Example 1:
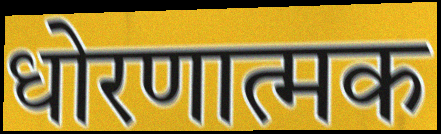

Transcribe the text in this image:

धोरणात्मक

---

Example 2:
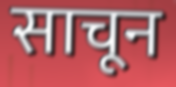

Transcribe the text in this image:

साचून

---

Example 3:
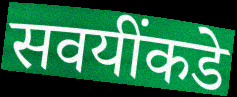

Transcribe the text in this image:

सवयींकडे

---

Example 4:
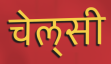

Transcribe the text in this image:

चेल्सी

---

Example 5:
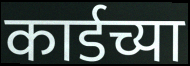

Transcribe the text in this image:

कार्डच्या